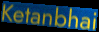
Ketanbhai